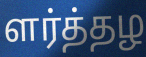
ளர்த்தழ